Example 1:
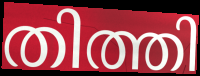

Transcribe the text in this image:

തിത്തി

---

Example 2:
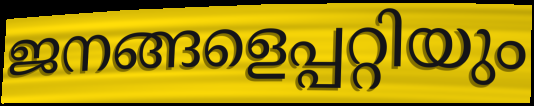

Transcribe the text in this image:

ജനങ്ങളെപ്പറ്റിയും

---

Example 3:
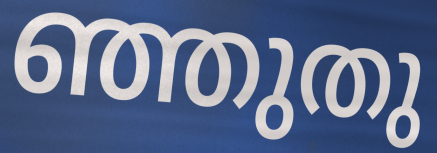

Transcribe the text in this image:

ഞ്ഞുതു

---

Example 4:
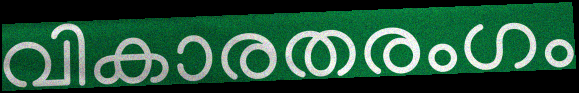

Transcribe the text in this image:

വികാരതരംഗം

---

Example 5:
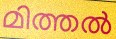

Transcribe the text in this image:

മിത്തൽ